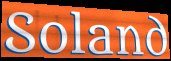
Soland